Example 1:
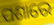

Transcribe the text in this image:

ପଶାରେ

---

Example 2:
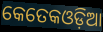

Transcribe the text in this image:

କେତେକଓଡ଼ିଆ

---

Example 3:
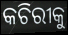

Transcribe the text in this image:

କଚିରୀକୁ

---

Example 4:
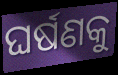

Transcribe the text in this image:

ଘର୍ଷଣକୁ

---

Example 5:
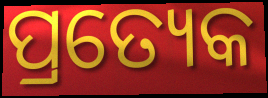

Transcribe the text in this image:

ପ୍ରତ୍ୟେକ